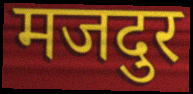
मजदुर